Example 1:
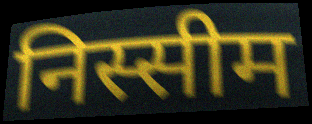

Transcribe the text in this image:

निस्सीम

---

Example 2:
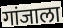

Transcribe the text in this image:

गांजाला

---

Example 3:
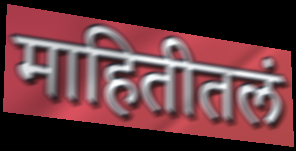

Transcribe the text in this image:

माहितीतलं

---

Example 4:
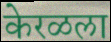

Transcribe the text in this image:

केरळला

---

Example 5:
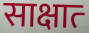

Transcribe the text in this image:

साक्षात्‍